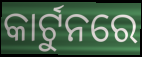
କାର୍ଟୁନରେ